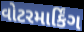
વોટરમાર્કિંગ